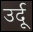
उर्दू